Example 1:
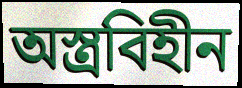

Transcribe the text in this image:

অস্ত্রবিহীন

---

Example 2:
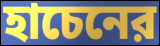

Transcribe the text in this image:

হাচেনের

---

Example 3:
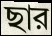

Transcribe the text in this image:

ছার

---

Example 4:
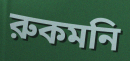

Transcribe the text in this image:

রুকমনি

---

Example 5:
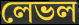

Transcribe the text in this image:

লেভল